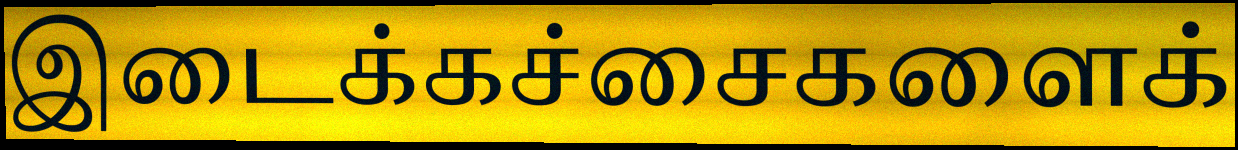
இடைக்கச்சைகளைக்